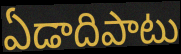
ఏడాదిపాటు